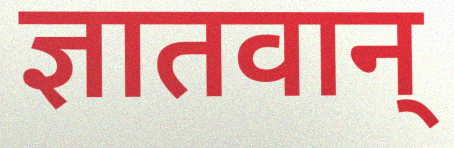
ज्ञातवान्